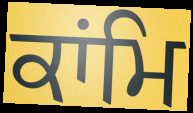
ਕਾਂਮਿ